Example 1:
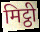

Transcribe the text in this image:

मिट्ठी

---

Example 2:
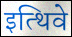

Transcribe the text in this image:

इत्थिवे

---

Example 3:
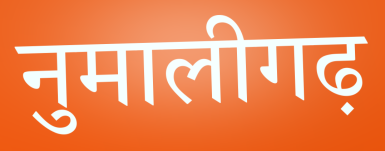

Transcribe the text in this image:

नुमालीगढ़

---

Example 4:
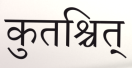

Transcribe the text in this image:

कुतश्चित्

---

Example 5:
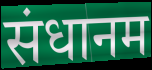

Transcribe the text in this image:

संधानम